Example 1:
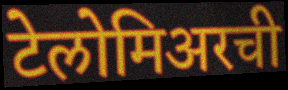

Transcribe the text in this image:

टेलोमिअरची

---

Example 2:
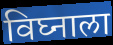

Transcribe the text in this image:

विघ्नाला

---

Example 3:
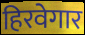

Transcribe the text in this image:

हिरवेगार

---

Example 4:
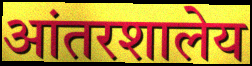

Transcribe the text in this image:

आंतरशालेय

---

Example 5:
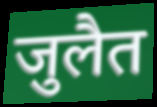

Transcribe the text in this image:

जुलैत